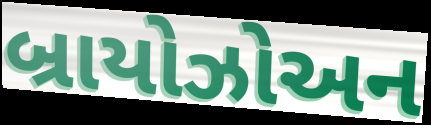
બ્રાયોઝોઅન